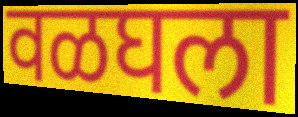
वळघला